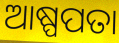
ଆଷ୍ପପତା